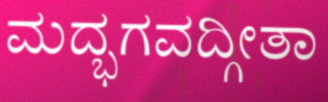
ಮದ್ಭಗವದ್ಗೀತಾ